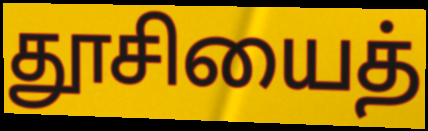
தூசியைத்